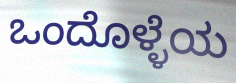
ಒಂದೊಳ್ಳೆಯ